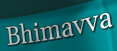
Bhimavva